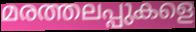
മരത്തലപ്പുകളെ